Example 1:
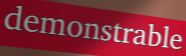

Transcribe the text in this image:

demonstrable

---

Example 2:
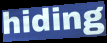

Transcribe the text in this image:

hiding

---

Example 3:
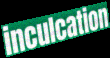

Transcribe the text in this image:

inculcation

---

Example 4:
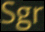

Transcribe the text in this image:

Sgr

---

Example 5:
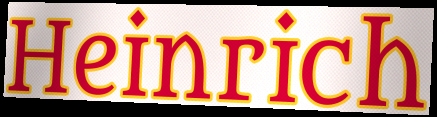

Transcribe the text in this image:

Heinrich